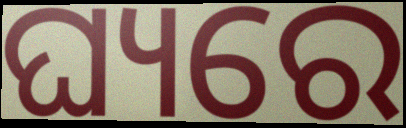
ଘ୍ୟରେ